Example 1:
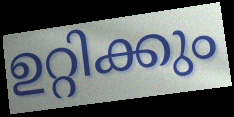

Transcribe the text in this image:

ഉറ്റിക്കും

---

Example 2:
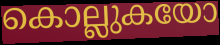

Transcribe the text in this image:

കൊല്ലുകയോ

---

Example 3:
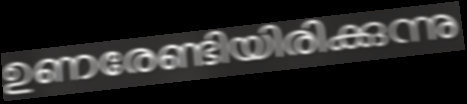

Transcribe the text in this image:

ഉണരേണ്ടിയിരിക്കുന്നു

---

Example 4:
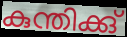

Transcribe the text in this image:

കുന്തിക്കു്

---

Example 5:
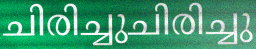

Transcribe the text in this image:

ചിരിച്ചുചിരിച്ചു